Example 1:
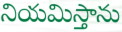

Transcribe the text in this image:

నియమిస్తాను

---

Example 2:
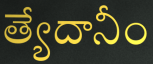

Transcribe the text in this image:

త్యేదానీం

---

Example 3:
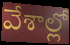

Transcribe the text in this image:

వేశాల్లో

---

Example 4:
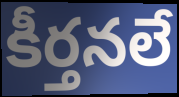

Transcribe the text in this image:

కీర్తనలే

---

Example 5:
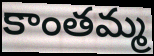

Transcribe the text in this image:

కాంతమ్మ